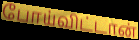
போய்விட்டான்